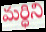
మర్ధిని